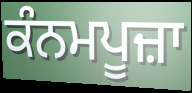
ਕੰਨਮਪੂਜ਼ਾ